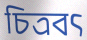
চিত্রবৎ